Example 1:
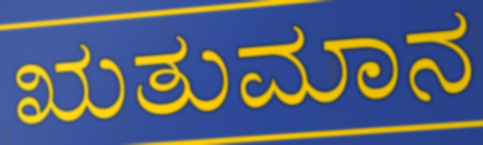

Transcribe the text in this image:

ಋತುಮಾನ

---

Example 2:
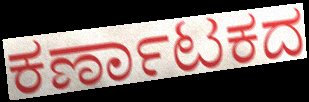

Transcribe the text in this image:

ಕರ್ಣಾಟಕದ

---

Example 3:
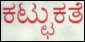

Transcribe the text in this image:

ಕಟ್ಟುಕತೆ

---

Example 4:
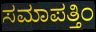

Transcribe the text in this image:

ಸಮಾಪತ್ತಿಂ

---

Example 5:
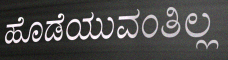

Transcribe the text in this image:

ಹೊಡೆಯುವಂತಿಲ್ಲ